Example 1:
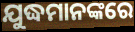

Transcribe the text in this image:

ଯୁଦ୍ଧମାନଙ୍କରେ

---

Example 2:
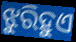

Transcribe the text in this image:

ଝୁରିହୁଏ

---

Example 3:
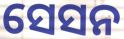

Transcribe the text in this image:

ସେସନ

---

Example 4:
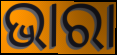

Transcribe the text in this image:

ଭାରା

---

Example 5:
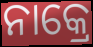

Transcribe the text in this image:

ନାକ୍ରେ